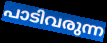
പാടിവരുന്ന